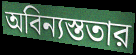
অবিন্যস্ততার